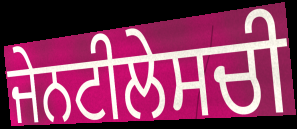
ਜੇਨਟੀਲੇਸਚੀ